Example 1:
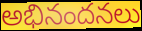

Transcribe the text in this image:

అభినందనలు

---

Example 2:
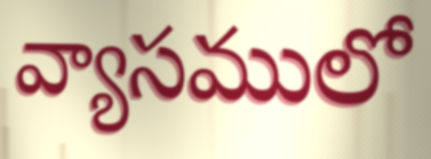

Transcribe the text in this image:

వ్యాసములో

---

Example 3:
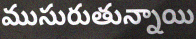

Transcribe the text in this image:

ముసురుతున్నాయి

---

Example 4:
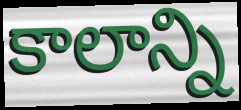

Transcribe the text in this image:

కాలాన్ని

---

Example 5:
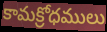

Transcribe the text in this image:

కామక్రోధములు